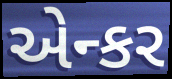
એન્કર